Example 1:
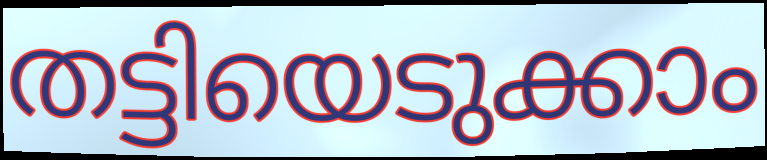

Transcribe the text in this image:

തട്ടിയെടുക്കാം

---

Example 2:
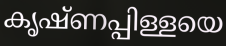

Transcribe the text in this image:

കൃഷ്ണപ്പിള്ളയെ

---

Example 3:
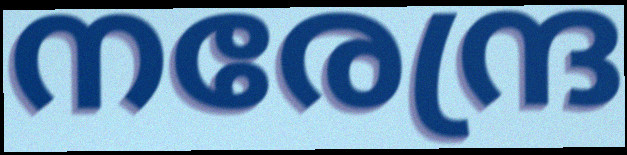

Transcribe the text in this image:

നരേന്ദ്ര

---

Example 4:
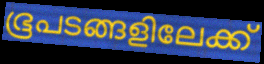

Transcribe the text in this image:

ഭൂപടങ്ങളിലേക്ക്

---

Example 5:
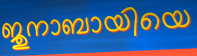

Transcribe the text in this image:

ജുനാബായിയെ